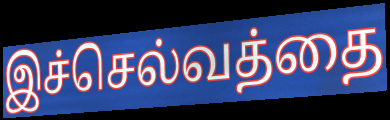
இச்செல்வத்தை